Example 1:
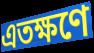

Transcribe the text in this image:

এতক্ষণে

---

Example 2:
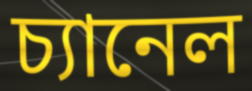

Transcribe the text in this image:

চ্যানেল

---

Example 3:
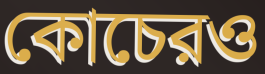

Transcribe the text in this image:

কোচেরও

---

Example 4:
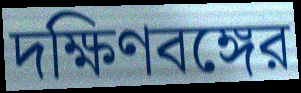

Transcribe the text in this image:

দক্ষিণবঙ্গের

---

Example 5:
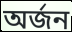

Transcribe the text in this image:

অর্জন